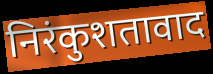
निरंकुशतावाद